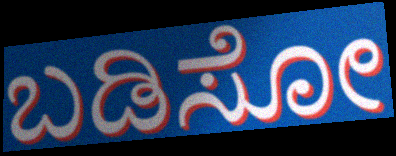
ಬಡಿಸೋ